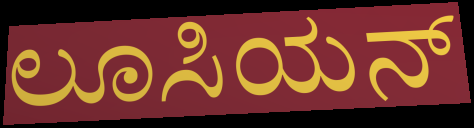
ಲೂಸಿಯನ್